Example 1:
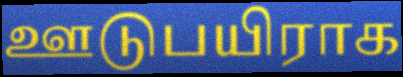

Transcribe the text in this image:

ஊடுபயிராக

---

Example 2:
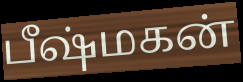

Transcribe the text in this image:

பீஷ்மகன்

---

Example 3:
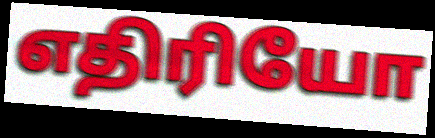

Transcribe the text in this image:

எதிரியோ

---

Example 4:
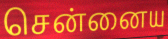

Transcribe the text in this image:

சென்னைய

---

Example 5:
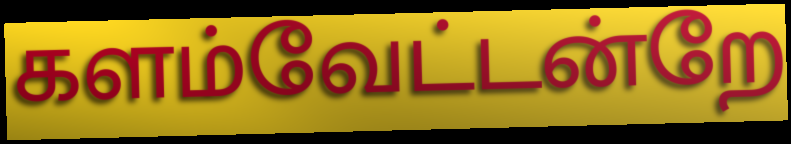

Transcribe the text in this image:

களம்வேட்டன்றே